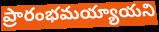
ప్రారంభమయ్యాయని